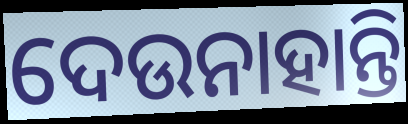
ଦେଉନାହାନ୍ତି